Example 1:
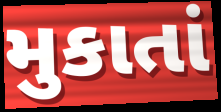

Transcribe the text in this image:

મુકાતાં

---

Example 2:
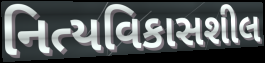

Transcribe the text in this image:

નિત્યવિકાસશીલ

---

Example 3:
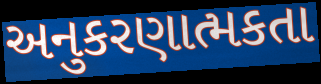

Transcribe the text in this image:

અનુકરણાત્મકતા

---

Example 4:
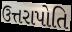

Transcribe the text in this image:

ઉત્તરાપોતિ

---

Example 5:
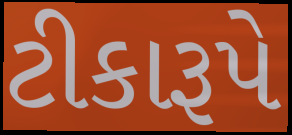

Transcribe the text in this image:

ટીકારૂપે